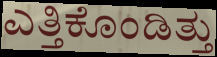
ಎತ್ತಿಕೊಂಡಿತ್ತು